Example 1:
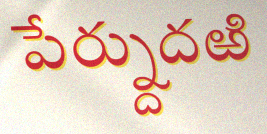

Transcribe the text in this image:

పేర్న్దుదఱి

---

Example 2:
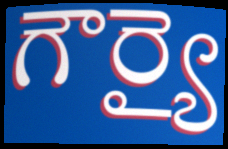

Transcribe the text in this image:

గౌర్యై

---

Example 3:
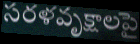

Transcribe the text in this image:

సరళవృక్షాలపై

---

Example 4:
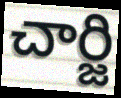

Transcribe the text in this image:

చార్జి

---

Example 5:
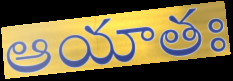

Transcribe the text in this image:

ఆయాతః